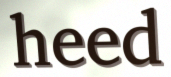
heed